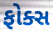
ફોક્સ